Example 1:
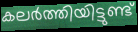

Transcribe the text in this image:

കലർത്തിയിട്ടുണ്ട്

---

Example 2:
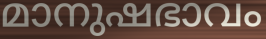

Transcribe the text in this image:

മാനുഷഭാവം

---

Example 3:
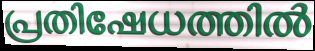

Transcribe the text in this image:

പ്രതിഷേധത്തിൽ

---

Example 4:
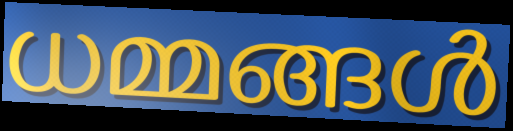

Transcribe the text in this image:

ധമ്മങ്ങൾ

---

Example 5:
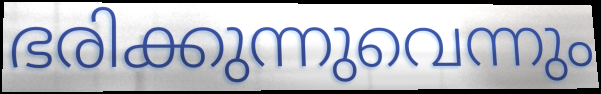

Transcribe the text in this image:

ഭരിക്കുന്നുവെന്നും